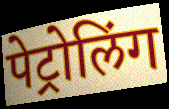
पेट्रोलिंग